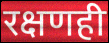
रक्षणही